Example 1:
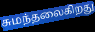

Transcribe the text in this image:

சுமந்தலைகிறது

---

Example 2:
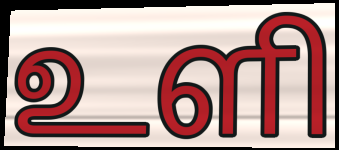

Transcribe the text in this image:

உளி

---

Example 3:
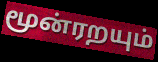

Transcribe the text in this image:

மூன்ரறயும்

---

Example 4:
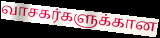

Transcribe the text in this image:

வாசகர்களுக்கான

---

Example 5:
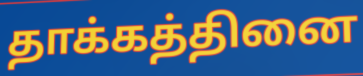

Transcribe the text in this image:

தாக்கத்தினை